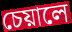
চেয়ালে